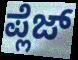
ಪ್ಲೆಜ್